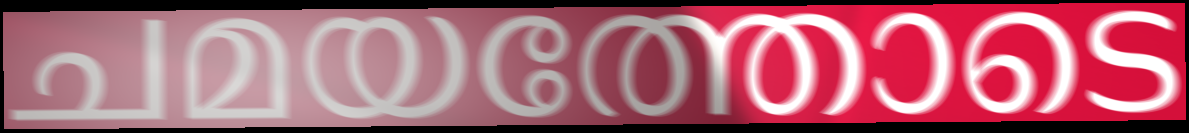
ചമയത്തോടെ